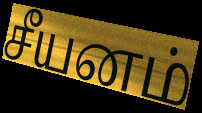
சீயனம்